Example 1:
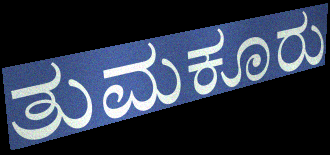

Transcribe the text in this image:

ತುಮಕೂರು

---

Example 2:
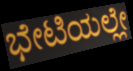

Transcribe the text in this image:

ಭೇಟಿಯಲ್ಲೇ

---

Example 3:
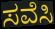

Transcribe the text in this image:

ಸವೆಸಿ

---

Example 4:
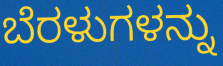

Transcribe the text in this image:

ಬೆರಳುಗಳನ್ನು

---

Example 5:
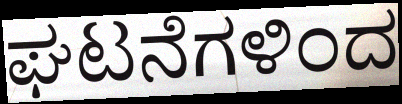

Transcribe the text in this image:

ಘಟನೆಗಳಿಂದ